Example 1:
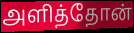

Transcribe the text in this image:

அளித்தோன்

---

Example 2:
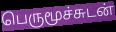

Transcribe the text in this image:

பெருமூச்சுடன்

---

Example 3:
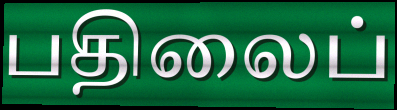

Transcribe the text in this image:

பதிலைப்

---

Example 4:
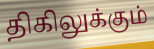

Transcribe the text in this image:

திகிலுக்கும்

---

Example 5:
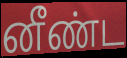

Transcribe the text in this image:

னீண்ட